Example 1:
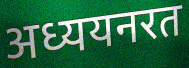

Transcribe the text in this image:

अध्ययनरत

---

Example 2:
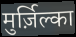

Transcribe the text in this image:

मुर्ज़िल्का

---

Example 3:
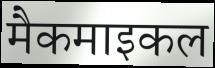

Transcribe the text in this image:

मैकमाइकल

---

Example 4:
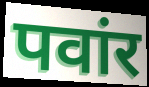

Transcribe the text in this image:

पवांर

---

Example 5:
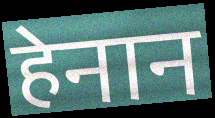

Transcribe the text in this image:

हेनान